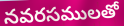
నవరసములతో